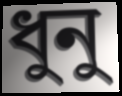
ধুনু